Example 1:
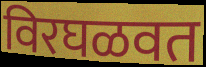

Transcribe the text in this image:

विरघळवत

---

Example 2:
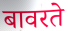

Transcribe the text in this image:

बावरते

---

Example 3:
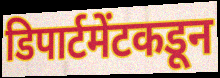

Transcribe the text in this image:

डिपार्टमेंटकडून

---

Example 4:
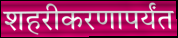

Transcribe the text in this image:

शहरीकरणापर्यंत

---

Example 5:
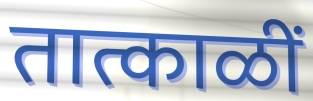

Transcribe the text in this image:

तात्काळीं